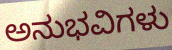
ಅನುಭವಿಗಳು